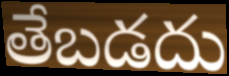
తేబడదు